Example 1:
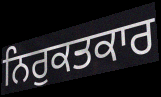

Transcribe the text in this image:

ਨਿਰੁਕਤਕਾਰ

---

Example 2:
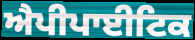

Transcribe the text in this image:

ਐਪੀਪਾਈਟਿਕ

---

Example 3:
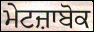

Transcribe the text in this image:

ਮੇਟਜ਼ਾਬੋਕ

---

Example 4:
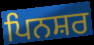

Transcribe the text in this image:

ਪਿਨਸ਼ਰ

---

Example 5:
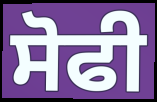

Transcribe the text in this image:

ਸੋਫੀ